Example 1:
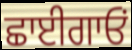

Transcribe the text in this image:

ਛਾਈਗਾਓਂ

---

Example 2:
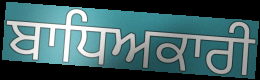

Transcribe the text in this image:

ਬਾਧਿਅਕਾਰੀ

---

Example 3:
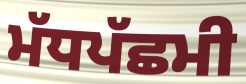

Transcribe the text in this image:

ਮੱਧਪੱਛਮੀ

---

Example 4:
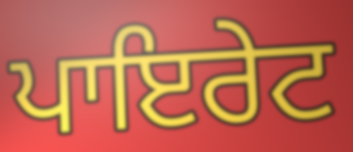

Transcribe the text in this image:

ਪਾਇਰੇਟ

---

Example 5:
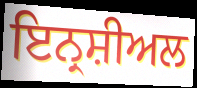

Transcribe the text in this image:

ਇਨ੍ਰਸ਼ੀਅਲ